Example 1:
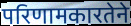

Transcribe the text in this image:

परिणामकारतेने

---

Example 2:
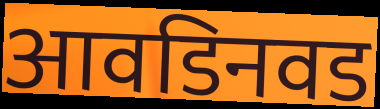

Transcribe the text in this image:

आवडिनवड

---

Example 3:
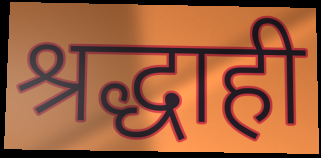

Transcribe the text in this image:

श्रद्धाही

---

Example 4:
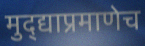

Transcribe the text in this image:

मुद्द्याप्रमाणेच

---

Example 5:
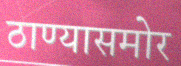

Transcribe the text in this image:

ठाण्यासमोर